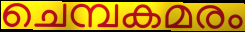
ചെമ്പകമരം